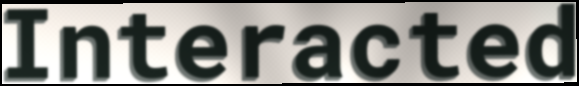
Interacted